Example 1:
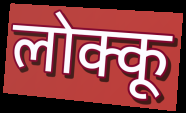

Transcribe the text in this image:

लोक्कू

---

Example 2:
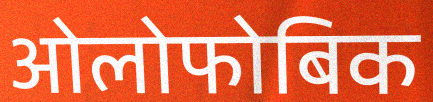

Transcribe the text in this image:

ओलोफोबिक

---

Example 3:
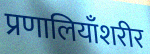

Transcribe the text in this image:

प्रणालियाँशरीर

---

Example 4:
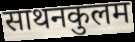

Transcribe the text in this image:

साथनकुलम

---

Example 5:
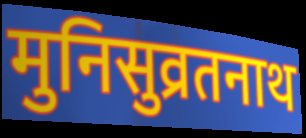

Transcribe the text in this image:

मुनिसुव्रतनाथ